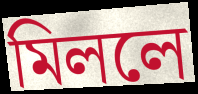
মিললে